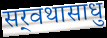
सर्वथासाधु